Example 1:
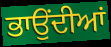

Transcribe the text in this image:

ਭਾਉਂਦੀਆਂ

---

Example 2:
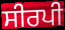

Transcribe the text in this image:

ਸੀਰਪੀ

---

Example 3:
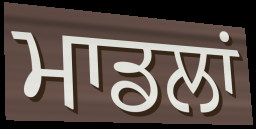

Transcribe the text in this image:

ਮਾਡਲਾਂ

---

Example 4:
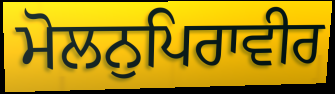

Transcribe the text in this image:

ਮੋਲਨੁਪਿਰਾਵੀਰ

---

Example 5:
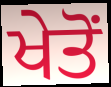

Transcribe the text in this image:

ਖੇਤੋਂ